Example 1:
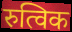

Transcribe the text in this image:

रुत्विक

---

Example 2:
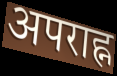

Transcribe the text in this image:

अपराह्न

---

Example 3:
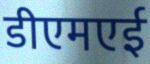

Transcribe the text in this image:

डीएमएई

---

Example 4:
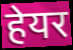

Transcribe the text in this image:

हेयर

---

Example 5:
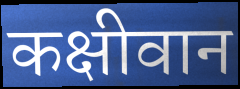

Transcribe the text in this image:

कक्षीवान